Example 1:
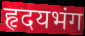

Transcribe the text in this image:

हृदयभंग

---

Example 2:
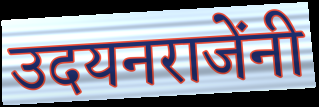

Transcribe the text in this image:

उदयनराजेंनी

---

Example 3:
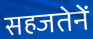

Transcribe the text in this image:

सहजतेनें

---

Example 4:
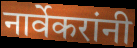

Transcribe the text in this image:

नार्वेकरांनी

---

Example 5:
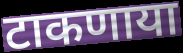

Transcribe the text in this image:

टाकणाया